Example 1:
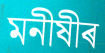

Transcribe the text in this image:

মনীষীৰ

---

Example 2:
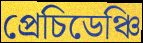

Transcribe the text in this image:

প্ৰেচিডেঞ্চি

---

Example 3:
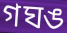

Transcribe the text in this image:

গঘঙ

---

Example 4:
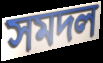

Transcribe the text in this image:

সমদল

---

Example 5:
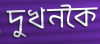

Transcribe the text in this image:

দুখনকৈ